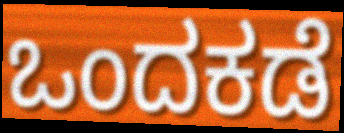
ಒಂದಕಡೆ